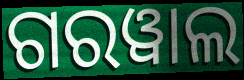
ଗରୱାଲ